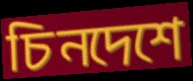
চিনদেশে